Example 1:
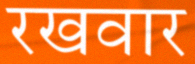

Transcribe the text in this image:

रखवार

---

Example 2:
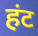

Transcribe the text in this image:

हंट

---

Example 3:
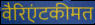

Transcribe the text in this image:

वैरिएंटकीमत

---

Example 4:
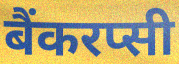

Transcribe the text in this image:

बैंकरप्सी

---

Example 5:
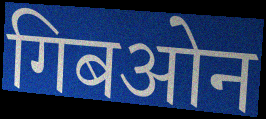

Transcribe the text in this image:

गिबओन